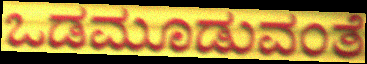
ಒಡಮೂಡುವಂತೆ